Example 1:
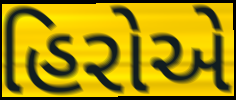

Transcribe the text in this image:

હિરોએ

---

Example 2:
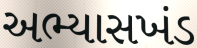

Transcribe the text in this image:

અભ્યાસખંડ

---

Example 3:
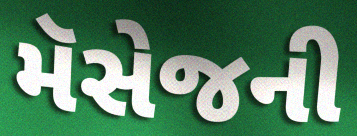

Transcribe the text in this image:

મૅસેજની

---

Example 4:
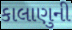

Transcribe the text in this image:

કાલાણુની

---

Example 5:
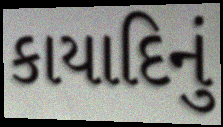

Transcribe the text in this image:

કાયાદિનું